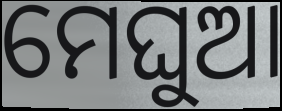
ମେଘୁଆ